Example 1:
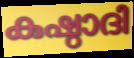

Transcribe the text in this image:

കുഷ്ഠാദി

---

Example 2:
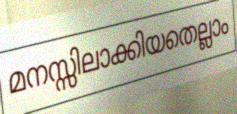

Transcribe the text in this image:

മനസ്സിലാക്കിയതെല്ലാം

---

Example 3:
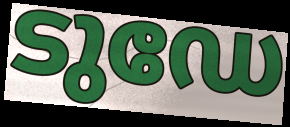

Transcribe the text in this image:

ടുഡേ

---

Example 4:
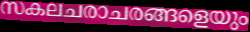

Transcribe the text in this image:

സകലചരാചരങ്ങളെയും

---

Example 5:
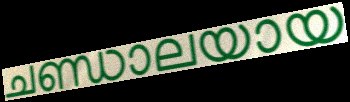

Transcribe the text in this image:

ചണ്ഡാലയായ